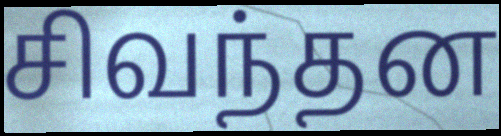
சிவந்தன